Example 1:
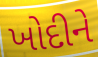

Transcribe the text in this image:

ખોદીને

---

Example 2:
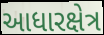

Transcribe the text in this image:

આધારક્ષેત્ર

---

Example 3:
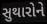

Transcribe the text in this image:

સુથારોને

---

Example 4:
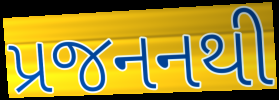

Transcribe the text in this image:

પ્રજનનથી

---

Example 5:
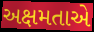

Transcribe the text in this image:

અક્ષમતાએ